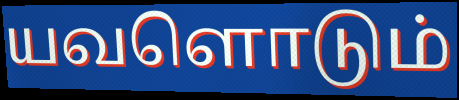
யவளொடும்